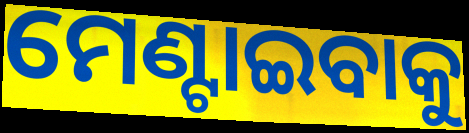
ମେଣ୍ଟାଇବାକୁ